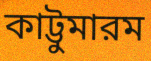
কাট্টুমারম